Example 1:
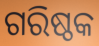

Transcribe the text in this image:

ଗରିଷ୍ଠକ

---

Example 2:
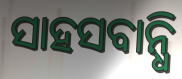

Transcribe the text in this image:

ସାହସବାନ୍ଧି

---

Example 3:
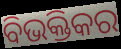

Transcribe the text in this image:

ବିଭକ୍ତିକର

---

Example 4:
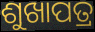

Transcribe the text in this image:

ଶୁଖାପତ୍ର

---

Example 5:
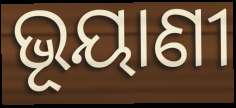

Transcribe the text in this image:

ଭୂୟାଣୀ